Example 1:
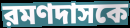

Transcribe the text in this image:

রমণদাসকে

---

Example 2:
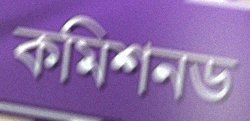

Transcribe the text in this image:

কমিশনড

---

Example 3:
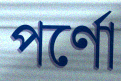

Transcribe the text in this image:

পর্ণো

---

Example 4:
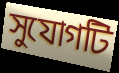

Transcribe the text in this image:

সুযোগটি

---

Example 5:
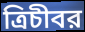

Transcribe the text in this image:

ত্রিচীবর